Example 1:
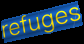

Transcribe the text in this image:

refuges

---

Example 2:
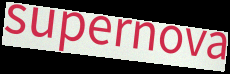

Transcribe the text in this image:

supernova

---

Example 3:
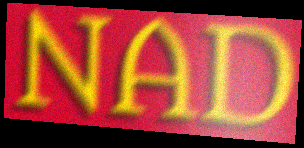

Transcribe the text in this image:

NAD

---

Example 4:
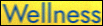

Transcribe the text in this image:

Wellness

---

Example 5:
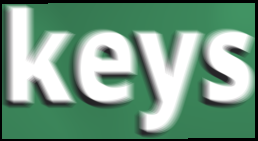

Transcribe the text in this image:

keys